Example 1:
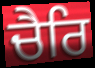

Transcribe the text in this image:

ਚੈਰਿ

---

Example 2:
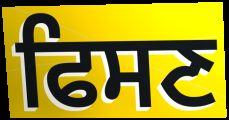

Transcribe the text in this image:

ਫਿਸਣ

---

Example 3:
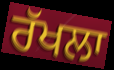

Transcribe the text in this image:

ਰੱਖਲਾ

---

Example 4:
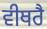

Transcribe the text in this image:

ਵੀਥਰੈ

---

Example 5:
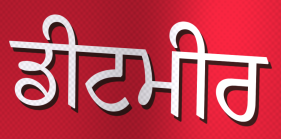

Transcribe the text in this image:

ਡੀਟਮੀਰ